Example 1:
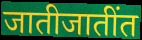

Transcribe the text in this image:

जातीजातींत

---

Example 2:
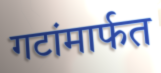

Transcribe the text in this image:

गटांमार्फत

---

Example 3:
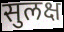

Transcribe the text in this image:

सुलक्ष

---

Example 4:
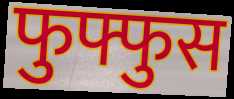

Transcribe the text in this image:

फुफ्फुस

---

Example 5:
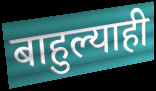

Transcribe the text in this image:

बाहुल्याही